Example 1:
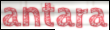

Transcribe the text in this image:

antara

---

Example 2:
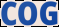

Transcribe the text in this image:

COG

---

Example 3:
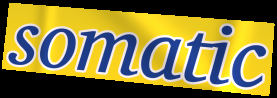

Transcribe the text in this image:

somatic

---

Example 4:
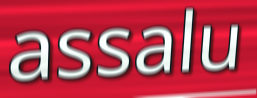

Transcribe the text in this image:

assalu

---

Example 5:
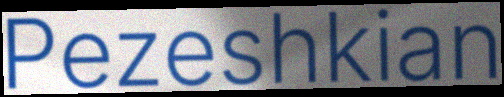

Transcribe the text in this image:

Pezeshkian